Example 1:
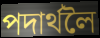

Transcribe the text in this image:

পদাৰ্থলৈ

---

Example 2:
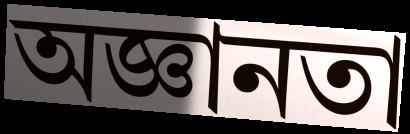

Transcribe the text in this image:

অজ্ঞানতা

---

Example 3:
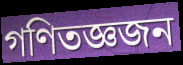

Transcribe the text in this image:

গণিতজ্ঞজন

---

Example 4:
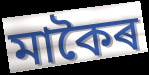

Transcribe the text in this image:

মাকৈৰ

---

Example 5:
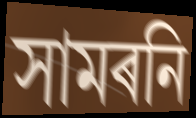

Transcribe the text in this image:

সামৰনি